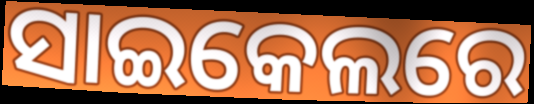
ସାଇକେଲରେ